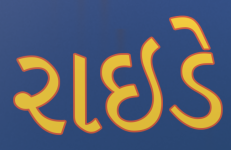
રાઇડે